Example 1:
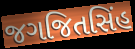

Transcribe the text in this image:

જગજિતસિંહ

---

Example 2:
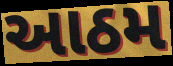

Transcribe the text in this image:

આઠમ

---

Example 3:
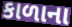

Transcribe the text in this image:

કાળાના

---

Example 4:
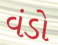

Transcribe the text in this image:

વંડો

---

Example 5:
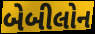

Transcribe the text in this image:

બેબીલોન